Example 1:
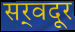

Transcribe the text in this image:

सर्वदूर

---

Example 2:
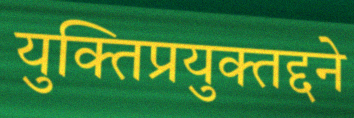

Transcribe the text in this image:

युक्तिप्रयुक्तद्दने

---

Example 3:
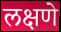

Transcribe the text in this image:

लक्षणे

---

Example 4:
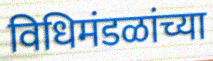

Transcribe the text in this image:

विधिमंडळांच्या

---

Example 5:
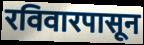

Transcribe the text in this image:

रविवारपासून